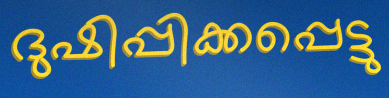
ദുഷിപ്പിക്കപ്പെട്ടു